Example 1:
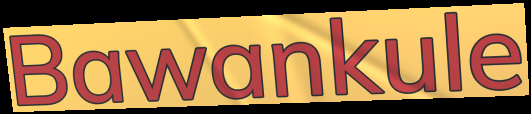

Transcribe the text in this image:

Bawankule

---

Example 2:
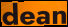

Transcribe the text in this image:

dean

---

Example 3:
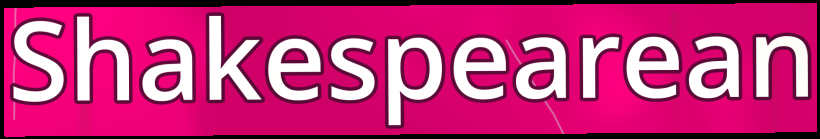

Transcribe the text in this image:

Shakespearean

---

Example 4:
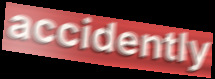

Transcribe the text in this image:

accidently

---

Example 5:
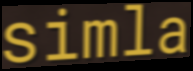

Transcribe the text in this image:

simla